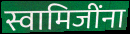
स्वामिजींना